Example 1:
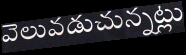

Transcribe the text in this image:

వెలువడుచున్నట్లు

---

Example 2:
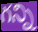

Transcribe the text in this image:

గన్ని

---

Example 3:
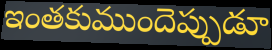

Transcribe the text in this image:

ఇంతకుముందెప్పుడూ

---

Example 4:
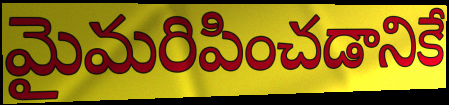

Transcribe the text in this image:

మైమరిపించడానికే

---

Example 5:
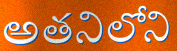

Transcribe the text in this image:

అతనిలోని